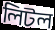
লিটল